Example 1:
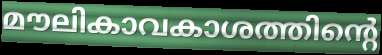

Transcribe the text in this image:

മൗലികാവകാശത്തിന്റെ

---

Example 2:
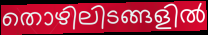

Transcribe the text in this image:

തൊഴിലിടങ്ങളിൽ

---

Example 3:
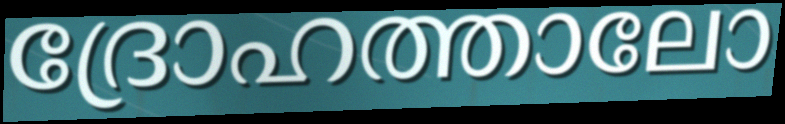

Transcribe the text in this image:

ദ്രോഹത്താലോ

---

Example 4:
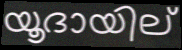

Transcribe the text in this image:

യൂദായില്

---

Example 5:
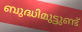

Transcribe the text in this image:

ബുദ്ധിമുട്ടുണ്ട്